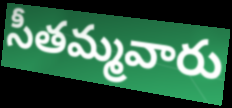
సీతమ్మవారు